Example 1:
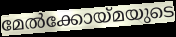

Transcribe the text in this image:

മേൽക്കോയ്മയുടെ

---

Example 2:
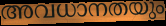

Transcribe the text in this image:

അവധാനതയും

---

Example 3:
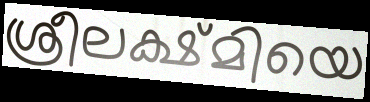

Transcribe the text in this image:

ശ്രീലക്ഷ്മിയെ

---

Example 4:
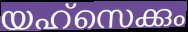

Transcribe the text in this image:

യഹ്സെക്കും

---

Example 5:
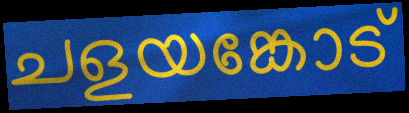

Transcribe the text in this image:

ചളയങ്കോട്